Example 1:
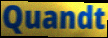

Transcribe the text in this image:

Quandt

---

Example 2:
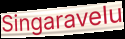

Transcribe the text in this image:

Singaravelu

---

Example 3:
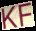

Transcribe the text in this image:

KF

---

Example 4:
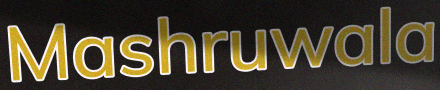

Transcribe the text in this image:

Mashruwala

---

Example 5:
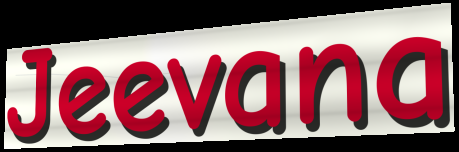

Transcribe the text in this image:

Jeevana